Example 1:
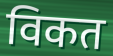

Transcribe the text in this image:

विकत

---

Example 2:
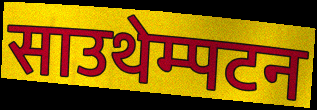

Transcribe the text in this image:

साउथेम्पटन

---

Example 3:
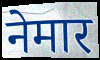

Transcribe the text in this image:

नेमार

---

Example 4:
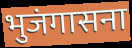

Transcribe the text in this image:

भुजंगासना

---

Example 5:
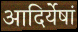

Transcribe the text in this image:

आदिर्येषां